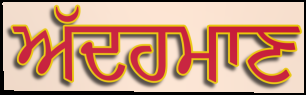
ਅੱਦਹਮਾਣ